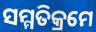
ସମ୍ମତିକ୍ରମେ